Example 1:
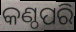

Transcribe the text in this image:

କଣ୍ଠପରି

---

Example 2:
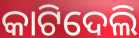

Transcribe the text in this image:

କାଟିଦେଲି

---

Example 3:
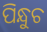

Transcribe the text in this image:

ପିନ୍ଧୁଚ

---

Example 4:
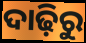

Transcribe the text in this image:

ଦାଢ଼ିରୁ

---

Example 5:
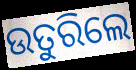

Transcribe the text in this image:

ଉତୁରିଲେ